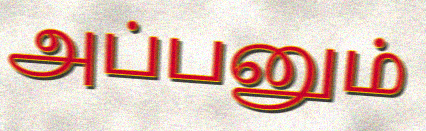
அப்பனும்